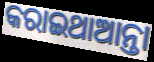
କରାଇଥାଆନ୍ତା